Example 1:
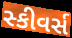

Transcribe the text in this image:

સ્કીવર્સ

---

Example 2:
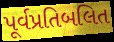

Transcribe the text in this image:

પૂર્વપ્રતિબલિત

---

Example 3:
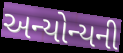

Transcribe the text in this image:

અન્યોન્યની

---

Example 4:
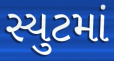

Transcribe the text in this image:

સ્યુટમાં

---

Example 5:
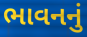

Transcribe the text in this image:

ભાવનનું